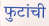
फुटांची